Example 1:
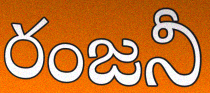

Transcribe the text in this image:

రంజనీ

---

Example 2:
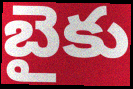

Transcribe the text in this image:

బైకు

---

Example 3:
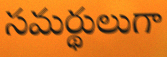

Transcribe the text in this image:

సమర్థులుగా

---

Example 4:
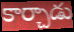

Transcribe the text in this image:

కార్చాడు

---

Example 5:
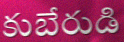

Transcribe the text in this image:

కుబేరుడి